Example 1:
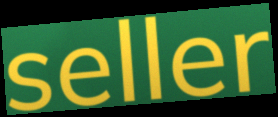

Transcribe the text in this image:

seller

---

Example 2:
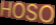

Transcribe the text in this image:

HOSO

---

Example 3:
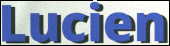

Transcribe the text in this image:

Lucien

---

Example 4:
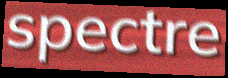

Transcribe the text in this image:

spectre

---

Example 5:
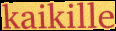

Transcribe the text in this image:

kaikille